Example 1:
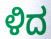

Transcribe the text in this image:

ಳಿದ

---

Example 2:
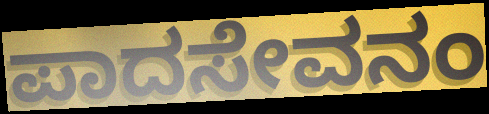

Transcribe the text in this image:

ಪಾದಸೇವನಂ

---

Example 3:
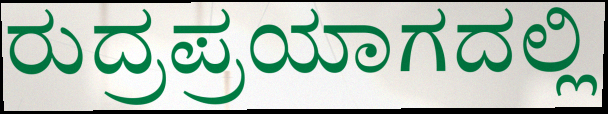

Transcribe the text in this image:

ರುದ್ರಪ್ರಯಾಗದಲ್ಲಿ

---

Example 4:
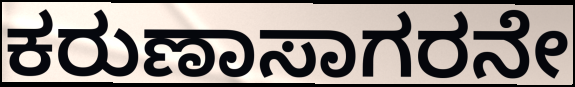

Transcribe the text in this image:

ಕರುಣಾಸಾಗರನೇ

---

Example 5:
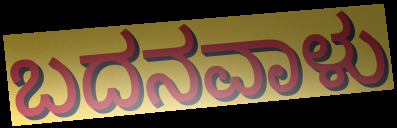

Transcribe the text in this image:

ಬದನವಾಳು